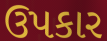
ઉપકાર